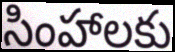
సింహాలకు